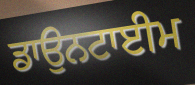
ਡਾਉਨਟਾਈਮ